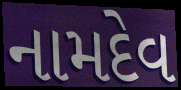
નામદેવ